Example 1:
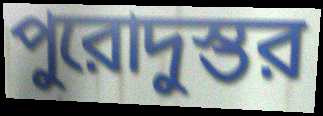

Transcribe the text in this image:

পুরোদুস্তর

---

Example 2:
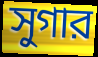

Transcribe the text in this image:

সুগার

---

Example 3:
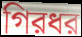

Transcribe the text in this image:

গিরধর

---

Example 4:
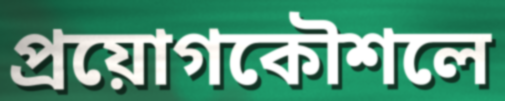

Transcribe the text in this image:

প্রয়োগকৌশলে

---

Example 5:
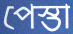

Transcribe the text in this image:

পেস্তা